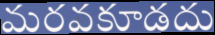
మరవకూడదు